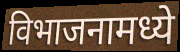
विभाजनामध्ये